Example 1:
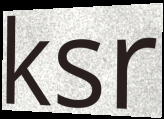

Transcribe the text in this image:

ksr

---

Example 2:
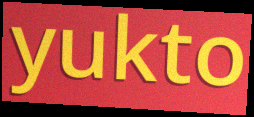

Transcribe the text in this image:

yukto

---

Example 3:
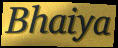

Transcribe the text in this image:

Bhaiya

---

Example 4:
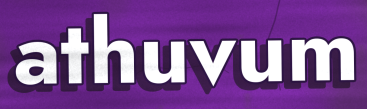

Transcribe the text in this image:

athuvum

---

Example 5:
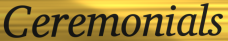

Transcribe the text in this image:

Ceremonials